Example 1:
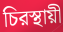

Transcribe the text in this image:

চিরস্থায়ী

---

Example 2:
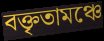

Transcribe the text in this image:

বক্তৃতামঞ্চে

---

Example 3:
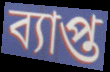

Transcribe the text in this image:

ব্যাপ্ত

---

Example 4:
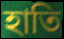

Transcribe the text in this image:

হাতি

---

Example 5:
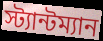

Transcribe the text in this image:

স্ট্যান্টম্যান